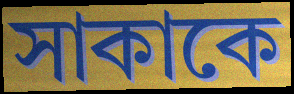
সাকাকে